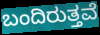
ಬಂದಿರುತ್ತವೆ